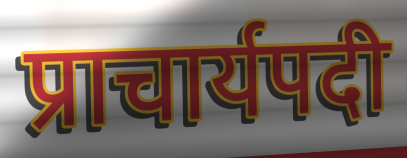
प्राचार्यपदी